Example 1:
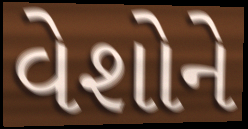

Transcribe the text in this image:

વેશોને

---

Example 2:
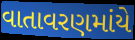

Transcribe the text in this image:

વાતાવરણમાંયે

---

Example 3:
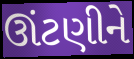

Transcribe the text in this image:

ઊંટણીને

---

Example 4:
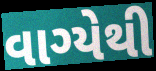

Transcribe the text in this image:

વાગ્યેથી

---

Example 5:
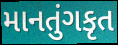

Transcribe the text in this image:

માનતુંગકૃત